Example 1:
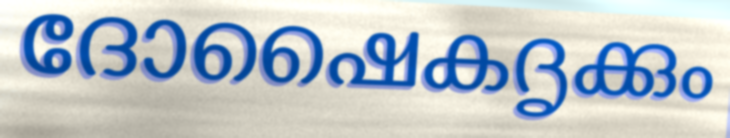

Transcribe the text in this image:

ദോഷൈകദൃക്കും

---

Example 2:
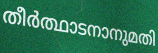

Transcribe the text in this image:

തീർത്ഥാടനാനുമതി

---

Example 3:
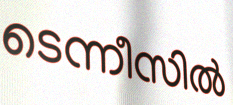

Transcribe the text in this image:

ടെന്നീസിൽ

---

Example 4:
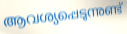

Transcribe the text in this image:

ആവശ്യപ്പെടുന്നുണ്ട്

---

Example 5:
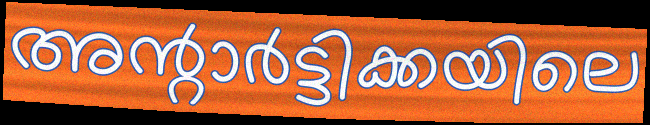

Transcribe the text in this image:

അന്റാർട്ടിക്കയിലെ